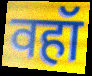
वहॉ